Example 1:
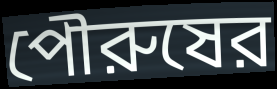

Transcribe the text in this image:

পৌরুষের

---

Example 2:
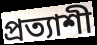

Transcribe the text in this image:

প্রত্যাশী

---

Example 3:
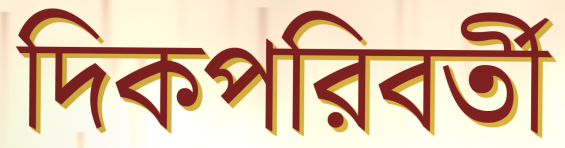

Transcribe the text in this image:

দিকপরিবর্তী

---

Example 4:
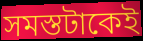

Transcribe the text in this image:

সমস্তটাকেই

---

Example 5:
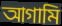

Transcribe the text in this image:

আগামি